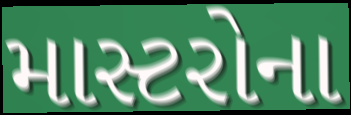
માસ્ટરોના